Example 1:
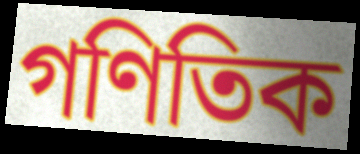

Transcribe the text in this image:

গণিতিক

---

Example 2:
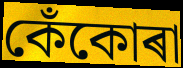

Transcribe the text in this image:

কেঁকোৰা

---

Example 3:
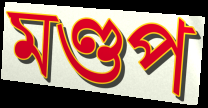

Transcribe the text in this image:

মণ্ডপ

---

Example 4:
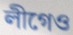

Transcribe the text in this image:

লীগেও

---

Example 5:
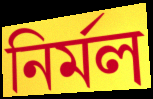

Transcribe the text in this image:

নিৰ্মল